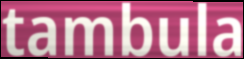
tambula